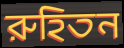
রুহিতন